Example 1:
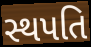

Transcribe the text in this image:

સ્થપતિ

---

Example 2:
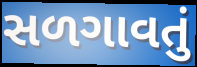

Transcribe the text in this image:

સળગાવતું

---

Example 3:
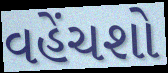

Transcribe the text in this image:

વહેંચશો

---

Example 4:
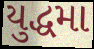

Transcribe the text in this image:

યુદ્ધમા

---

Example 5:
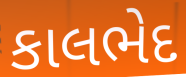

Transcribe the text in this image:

કાલભેદ